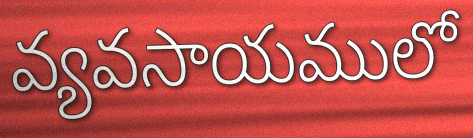
వ్యవసాయములో